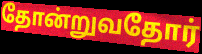
தோன்றுவதோர்